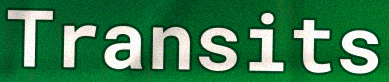
Transits